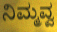
ನಿಮ್ಮವ್ವ